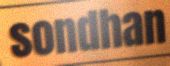
sondhan